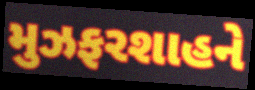
મુઝફરશાહને